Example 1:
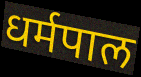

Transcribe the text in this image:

धर्मपाल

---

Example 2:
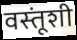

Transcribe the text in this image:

वस्तूंशी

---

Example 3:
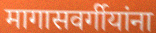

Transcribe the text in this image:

मागासवर्गीयांना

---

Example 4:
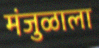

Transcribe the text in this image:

मंजुळाला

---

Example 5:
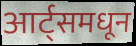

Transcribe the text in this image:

आर्ट्समधून